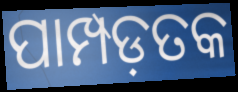
ପାମ୍ପଡ଼ତକ